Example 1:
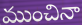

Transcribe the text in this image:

ముంచినా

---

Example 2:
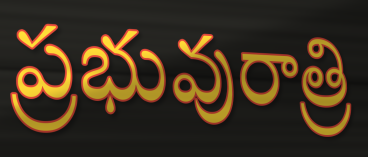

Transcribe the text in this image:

ప్రభువురాత్రి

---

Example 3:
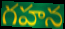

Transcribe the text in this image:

గహన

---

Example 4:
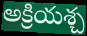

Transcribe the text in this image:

అక్రియశ్చ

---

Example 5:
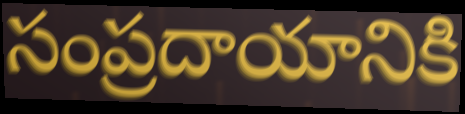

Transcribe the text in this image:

సంప్రదాయానికి